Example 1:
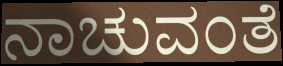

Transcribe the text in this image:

ನಾಚುವಂತೆ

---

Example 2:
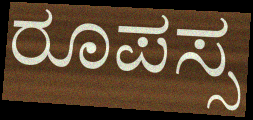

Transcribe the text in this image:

ರೂಪಸ್ಸ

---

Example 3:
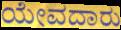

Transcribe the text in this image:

ಯೇವದಾರು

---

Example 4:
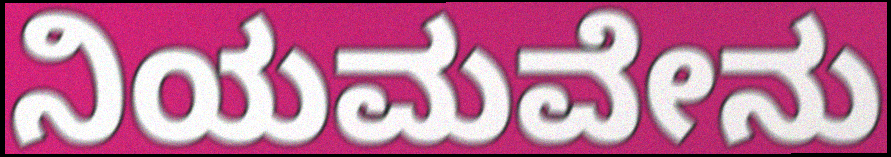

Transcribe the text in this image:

ನಿಯಮವೇನು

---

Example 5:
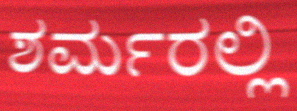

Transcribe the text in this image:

ಶರ್ಮರಲ್ಲಿ